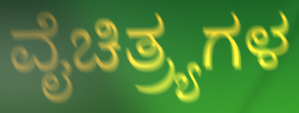
ವೈಚಿತ್ರ್ಯಗಳ